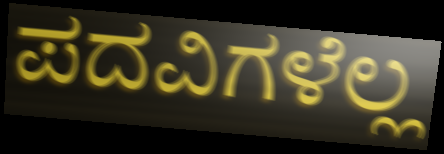
ಪದವಿಗಳೆಲ್ಲ